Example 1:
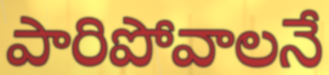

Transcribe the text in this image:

పారిపోవాలనే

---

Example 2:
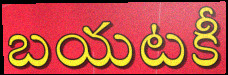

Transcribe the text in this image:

బయటకీ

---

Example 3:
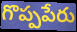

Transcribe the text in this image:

గొప్పపేరు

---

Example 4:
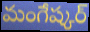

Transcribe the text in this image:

మంగేష్కర్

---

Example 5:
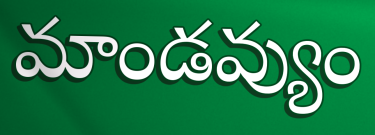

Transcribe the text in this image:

మాండవ్యుం